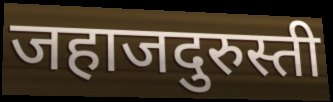
जहाजदुरुस्ती